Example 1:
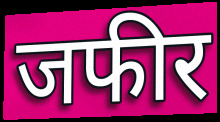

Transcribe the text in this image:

जफीर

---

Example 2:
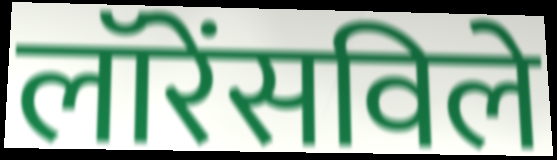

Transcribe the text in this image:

लॉरेंसविले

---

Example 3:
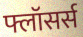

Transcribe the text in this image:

फ्लॉसर्स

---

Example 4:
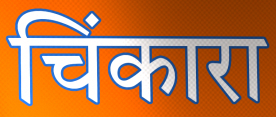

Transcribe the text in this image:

चिंकारा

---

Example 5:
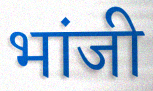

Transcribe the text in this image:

भांजी